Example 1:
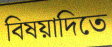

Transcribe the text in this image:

বিষয়াদিতে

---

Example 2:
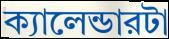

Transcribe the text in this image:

ক্যালেন্ডারটা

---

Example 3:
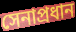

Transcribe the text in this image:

সেনাপ্রধান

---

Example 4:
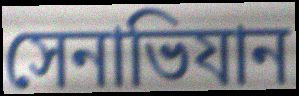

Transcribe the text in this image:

সেনাভিযান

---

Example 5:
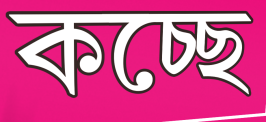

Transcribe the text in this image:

কচ্ছে